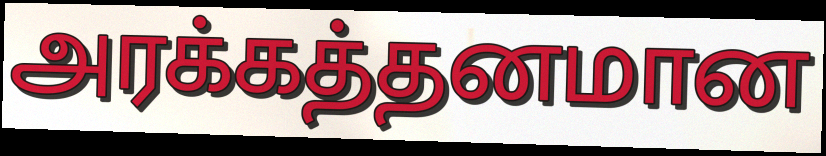
அரக்கத்தனமான